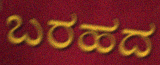
ಬರಹದ